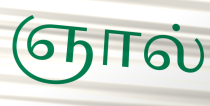
ஞால்